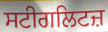
ਸਟੀਗਲਿਟਜ਼